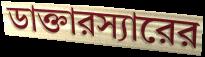
ডাক্তারস্যারের